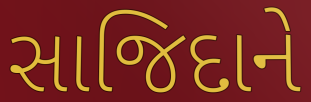
સાજિદાને